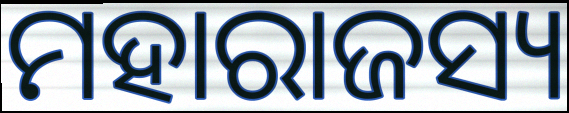
ମହାରାଜସ୍ୟ